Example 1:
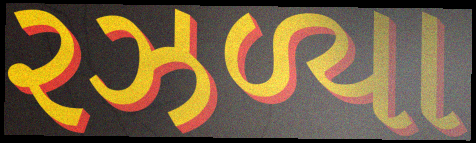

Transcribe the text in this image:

રઝળ્યા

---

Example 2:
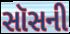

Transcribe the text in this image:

સૉસની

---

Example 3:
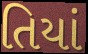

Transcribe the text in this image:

તિયાં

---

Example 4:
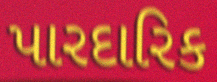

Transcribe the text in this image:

પારદારિક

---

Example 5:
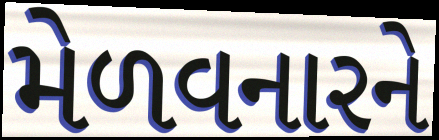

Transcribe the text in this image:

મેળવનારને